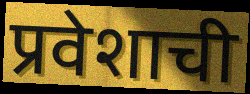
प्रवेशाची